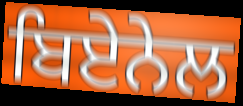
ਬਿਏਨੇਲ